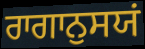
ਰਾਗਾਨੁਸਯਂ